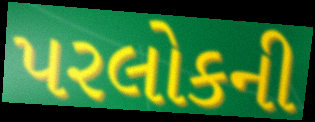
પરલોકની